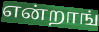
என்றாங்